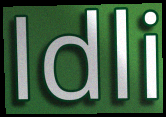
Idli